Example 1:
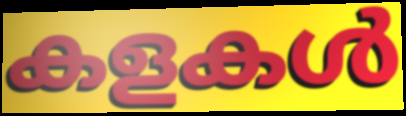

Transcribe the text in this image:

കളകൾ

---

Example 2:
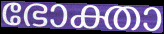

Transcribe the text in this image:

ഭോക്താ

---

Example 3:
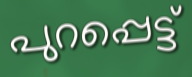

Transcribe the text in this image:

പുറപ്പെട്ട്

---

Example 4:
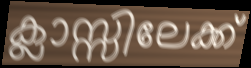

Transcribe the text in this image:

ക്ലാസ്സിലേക്ക്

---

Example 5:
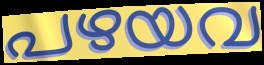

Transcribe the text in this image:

പഴയവ